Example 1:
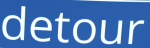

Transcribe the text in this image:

detour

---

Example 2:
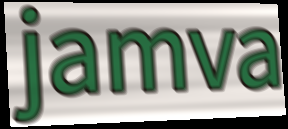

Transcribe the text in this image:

jamva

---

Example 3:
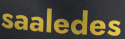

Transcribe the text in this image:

saaledes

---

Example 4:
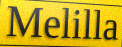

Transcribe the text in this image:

Melilla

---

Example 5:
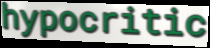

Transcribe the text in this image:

hypocritic